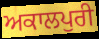
ਅਕਾਲਪੁਰੀ